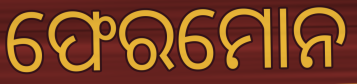
ଫେରମୋନ